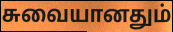
சுவையானதும்